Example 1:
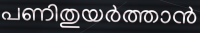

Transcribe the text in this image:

പണിതുയർത്താൻ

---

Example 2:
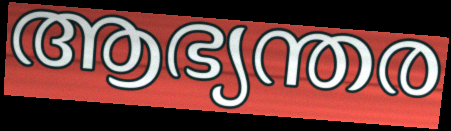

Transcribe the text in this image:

ആഭ്യന്തര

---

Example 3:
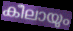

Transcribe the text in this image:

കീലായും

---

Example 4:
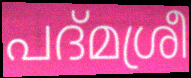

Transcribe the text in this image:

പദ്മശ്രീ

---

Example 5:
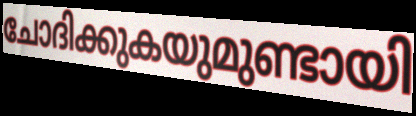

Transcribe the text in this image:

ചോദിക്കുകയുമുണ്ടായി